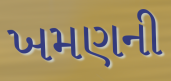
ખમણની